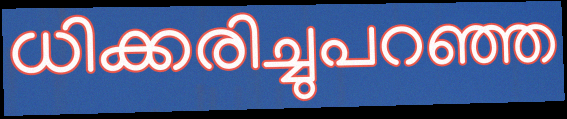
ധിക്കരിച്ചുപറഞ്ഞ